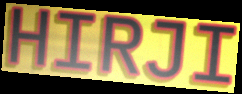
HIRJI